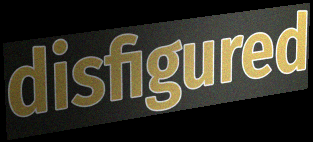
disfigured